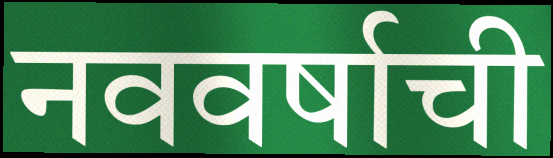
नववर्षाची